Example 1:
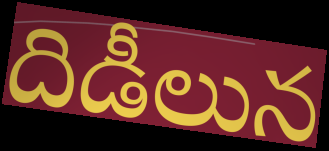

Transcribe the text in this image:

దిడీలున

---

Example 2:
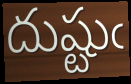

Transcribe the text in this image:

దుష్టుఁ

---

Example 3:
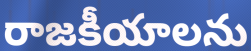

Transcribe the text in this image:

రాజకీయాలను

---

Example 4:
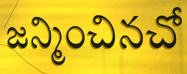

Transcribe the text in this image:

జన్మించినచో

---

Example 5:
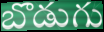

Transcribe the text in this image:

బొడుగు